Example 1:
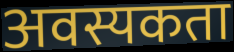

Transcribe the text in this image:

अवस्यकता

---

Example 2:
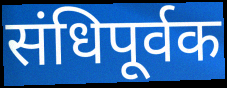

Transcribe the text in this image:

संधिपूर्वक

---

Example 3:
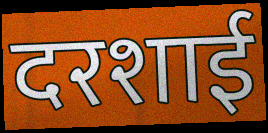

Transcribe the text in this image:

दरशाई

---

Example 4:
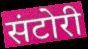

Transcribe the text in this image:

संटोरी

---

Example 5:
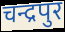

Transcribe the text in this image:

चन्द्रपुर